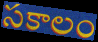
సకాలం